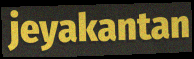
jeyakantan